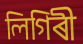
লিগিৰী